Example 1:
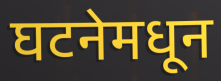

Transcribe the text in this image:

घटनेमधून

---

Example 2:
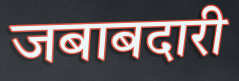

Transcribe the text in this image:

जबाबदारी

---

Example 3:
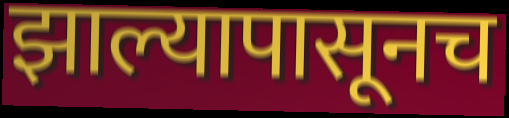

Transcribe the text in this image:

झाल्यापासूनच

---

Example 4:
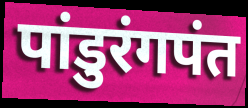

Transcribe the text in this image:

पांडुरंगपंत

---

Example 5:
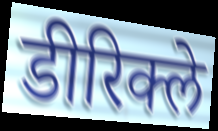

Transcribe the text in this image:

डीरिक्ले